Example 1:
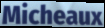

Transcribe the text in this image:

Micheaux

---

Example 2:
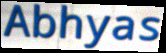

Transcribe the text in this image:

Abhyas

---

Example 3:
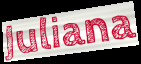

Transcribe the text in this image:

Juliana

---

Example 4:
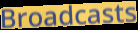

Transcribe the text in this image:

Broadcasts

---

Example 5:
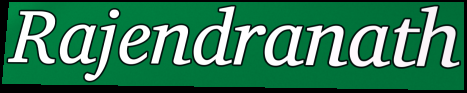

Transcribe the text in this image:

Rajendranath